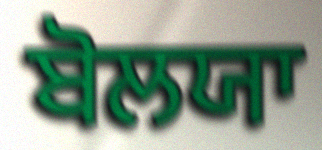
ਬੋਲਯਾ